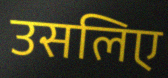
उसलिए